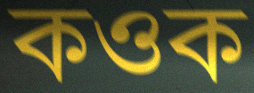
কওক